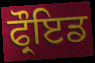
ਫ੍ਰੌਇਡ